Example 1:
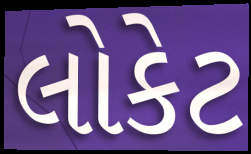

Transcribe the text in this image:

લોકેટ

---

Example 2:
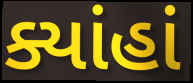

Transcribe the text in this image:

ક્યાંહાં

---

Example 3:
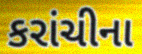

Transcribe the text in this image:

કરાંચીના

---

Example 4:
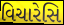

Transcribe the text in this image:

વિચારેસિ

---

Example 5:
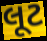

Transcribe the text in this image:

લૂટ